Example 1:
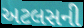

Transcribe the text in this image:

અટલસની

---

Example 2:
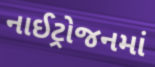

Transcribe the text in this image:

નાઈટ્રોજનમાં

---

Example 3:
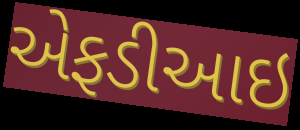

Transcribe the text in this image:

એફડીઆઇ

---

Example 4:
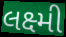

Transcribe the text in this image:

લક્ષ્મી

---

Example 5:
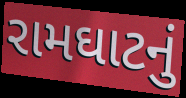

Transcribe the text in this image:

રામઘાટનું